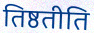
तिष्ठतीति